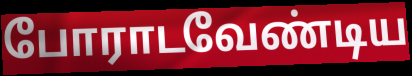
போராடவேண்டிய